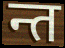
न्त